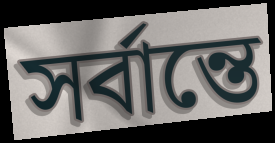
সর্বান্তে